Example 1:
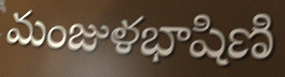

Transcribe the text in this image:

మంజుళభాషిణి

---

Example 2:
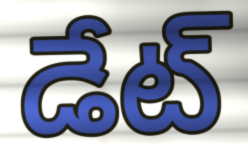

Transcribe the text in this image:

డేట్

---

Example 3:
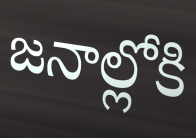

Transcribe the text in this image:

జనాల్లోకి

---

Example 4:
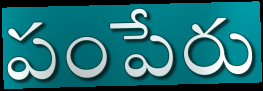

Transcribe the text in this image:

పంపేరు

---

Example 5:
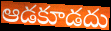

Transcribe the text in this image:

ఆడకూడదు